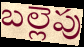
బల్లెపు